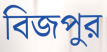
বিজপুর